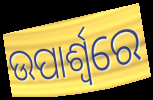
ଉପାର୍ଶ୍ଵରେ